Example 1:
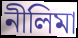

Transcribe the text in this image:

নীলিমা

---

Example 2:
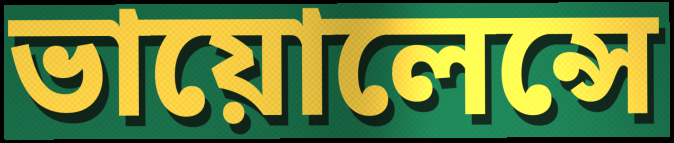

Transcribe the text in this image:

ভায়োলেন্সে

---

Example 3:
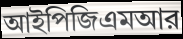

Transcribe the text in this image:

আইপিজিএমআর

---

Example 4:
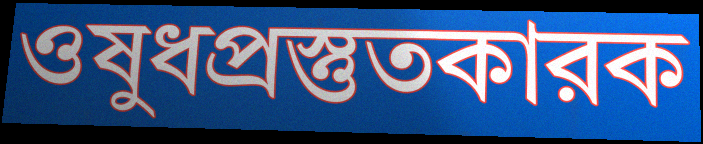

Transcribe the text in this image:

ওষুধপ্রস্তুতকারক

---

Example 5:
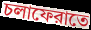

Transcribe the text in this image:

চলাফেরাতে